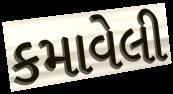
કમાવેલી